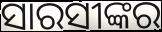
ସାରସୀଙ୍କର